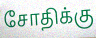
சோதிக்கு